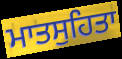
ਮਾਤਸੁਹਿਤਾ